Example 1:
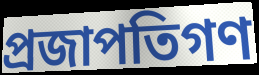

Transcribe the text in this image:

প্রজাপতিগণ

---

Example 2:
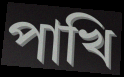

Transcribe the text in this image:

পাখি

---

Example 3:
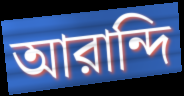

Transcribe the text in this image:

আরান্দি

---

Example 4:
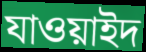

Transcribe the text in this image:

যাওয়াইদ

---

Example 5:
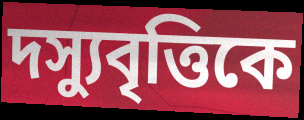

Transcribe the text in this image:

দস্যুবৃত্তিকে